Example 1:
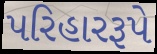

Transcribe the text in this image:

પરિહારરૂપે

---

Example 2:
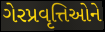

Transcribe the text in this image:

ગેરપ્રવૃત્તિઓને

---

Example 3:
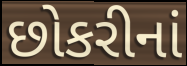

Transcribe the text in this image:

છોકરીનાં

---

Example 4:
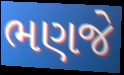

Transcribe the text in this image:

ભણજે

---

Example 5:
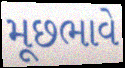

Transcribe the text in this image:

મૂછભાવે